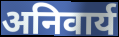
अनिवार्य